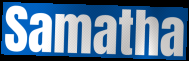
Samatha